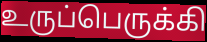
உருப்பெருக்கி